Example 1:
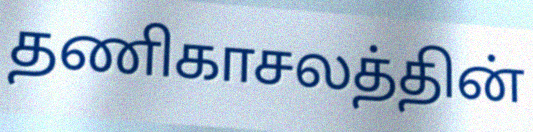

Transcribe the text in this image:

தணிகாசலத்தின்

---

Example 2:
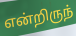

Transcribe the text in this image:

என்றிருந்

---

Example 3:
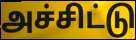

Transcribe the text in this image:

அச்சிட்டு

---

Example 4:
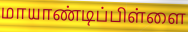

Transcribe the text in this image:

மாயாண்டிப்பிள்ளை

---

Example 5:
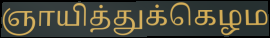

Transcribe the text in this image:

ஞாயித்துக்கெழம